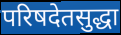
परिषदेतसुद्धा